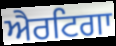
ਐਰਟਿਗਾ